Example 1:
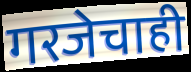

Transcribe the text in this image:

गरजेचाही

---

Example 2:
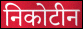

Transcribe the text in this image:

निकोटीन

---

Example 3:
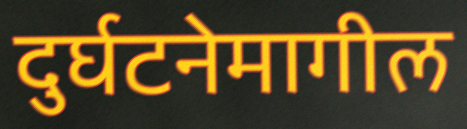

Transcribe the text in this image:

दुर्घटनेमागील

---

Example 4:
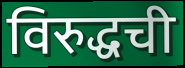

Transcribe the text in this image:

विरुद्धची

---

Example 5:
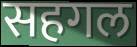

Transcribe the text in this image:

सहगल